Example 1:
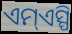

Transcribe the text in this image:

ଏମ୍ଏସ୍ପି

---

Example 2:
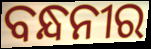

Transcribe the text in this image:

ବନ୍ଧନୀର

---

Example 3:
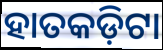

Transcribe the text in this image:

ହାତକଡ଼ିଟା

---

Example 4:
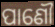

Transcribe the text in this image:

ପାଣୌ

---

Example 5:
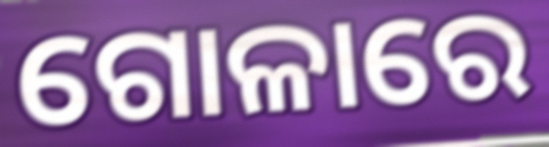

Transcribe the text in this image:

ଗୋଳାରେ